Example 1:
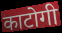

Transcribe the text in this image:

काटोगी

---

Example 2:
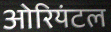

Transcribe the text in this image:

ओरियंटल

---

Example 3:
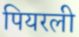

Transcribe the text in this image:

पियरली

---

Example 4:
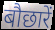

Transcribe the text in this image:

बौछारें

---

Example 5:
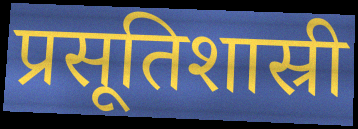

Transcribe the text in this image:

प्रसूतिशास्री